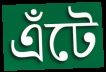
এঁটে